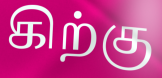
கிற்கு